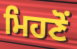
ਮਿਹਣੋਂ